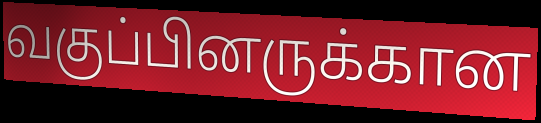
வகுப்பினருக்கான